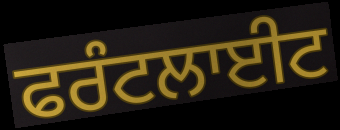
ਫਰੰਟਲਾਈਟ